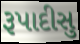
રૂપાદીસુ